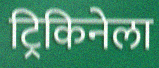
ट्रिकिनेला